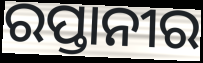
ରପ୍ତାନୀର